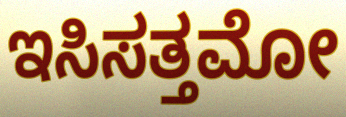
ಇಸಿಸತ್ತಮೋ